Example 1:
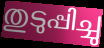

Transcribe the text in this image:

തുടുപ്പിച്ചു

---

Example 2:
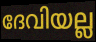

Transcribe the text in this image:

ദേവിയല്ല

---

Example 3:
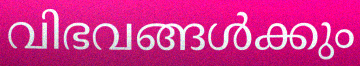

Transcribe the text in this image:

വിഭവങ്ങൾക്കും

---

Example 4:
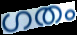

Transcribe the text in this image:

ഗതം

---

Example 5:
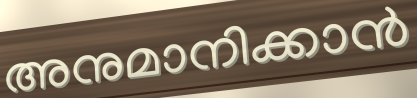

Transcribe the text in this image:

അനുമാനിക്കാൻ